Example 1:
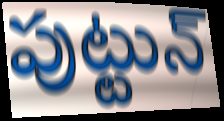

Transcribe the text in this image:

పుట్టున్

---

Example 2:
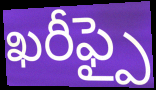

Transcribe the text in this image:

ఖరీఫ్పై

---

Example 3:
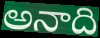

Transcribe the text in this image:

అనాది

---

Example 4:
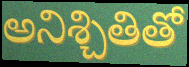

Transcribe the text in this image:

అనిశ్చితితో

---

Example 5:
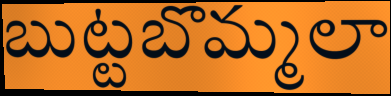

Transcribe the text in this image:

బుట్టబొమ్మలా